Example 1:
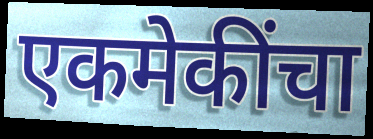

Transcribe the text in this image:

एकमेकींचा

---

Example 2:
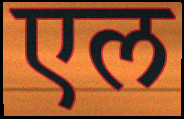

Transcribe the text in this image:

एल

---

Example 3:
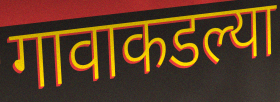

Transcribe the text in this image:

गावाकडल्या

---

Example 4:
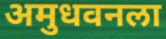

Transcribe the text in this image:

अमुधवनला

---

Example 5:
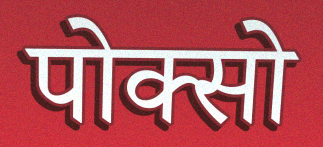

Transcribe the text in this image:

पोक्सो